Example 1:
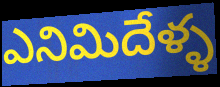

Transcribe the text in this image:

ఎనిమిదేళ్ళ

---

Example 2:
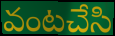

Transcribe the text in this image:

వంటచేసి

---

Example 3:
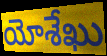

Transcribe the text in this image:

యోశేఖు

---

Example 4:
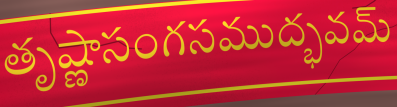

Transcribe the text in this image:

తృష్ణాసంగసముద్భవమ్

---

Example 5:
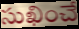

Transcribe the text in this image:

సుఖించే